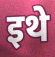
इथे